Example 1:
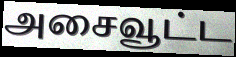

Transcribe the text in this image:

அசைவூட்ட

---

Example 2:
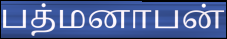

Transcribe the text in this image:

பத்மனாபன்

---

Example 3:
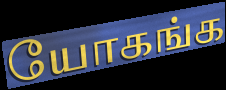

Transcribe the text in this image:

யோகங்க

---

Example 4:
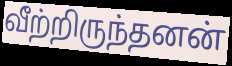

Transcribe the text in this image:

வீற்றிருந்தனன்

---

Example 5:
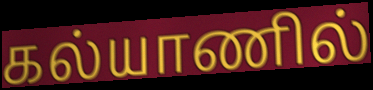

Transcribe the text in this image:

கல்யாணில்